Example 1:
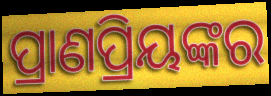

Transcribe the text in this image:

ପ୍ରାଣପ୍ରିୟଙ୍କର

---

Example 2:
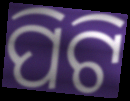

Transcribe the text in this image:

ପିଟି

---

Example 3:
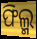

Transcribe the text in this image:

ଫିଲ୍ମ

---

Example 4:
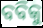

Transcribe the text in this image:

ବବିକୁ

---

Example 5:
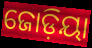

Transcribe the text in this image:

ଜୋଡ଼ିୟା